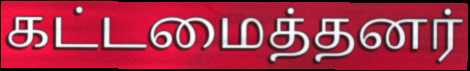
கட்டமைத்தனர்